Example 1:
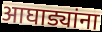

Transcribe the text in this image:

आघाड्यांना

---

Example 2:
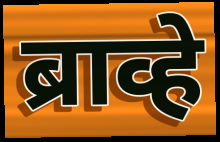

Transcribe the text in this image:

ब्राव्हे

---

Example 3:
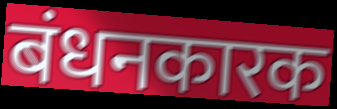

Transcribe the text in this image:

बंधनकारक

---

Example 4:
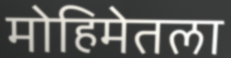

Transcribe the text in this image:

मोहिमेतला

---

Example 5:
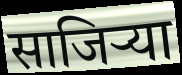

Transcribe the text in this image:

साजिर्‍या